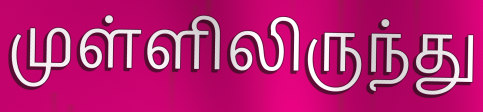
முள்ளிலிருந்து